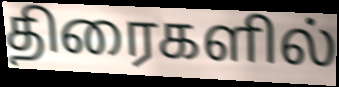
திரைகளில்